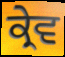
ਕ੍ਰੇਵ